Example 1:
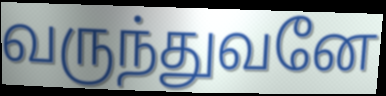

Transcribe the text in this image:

வருந்துவனே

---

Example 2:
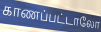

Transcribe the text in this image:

காணப்பட்டாலோ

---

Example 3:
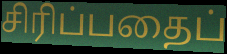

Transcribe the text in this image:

சிரிப்பதைப்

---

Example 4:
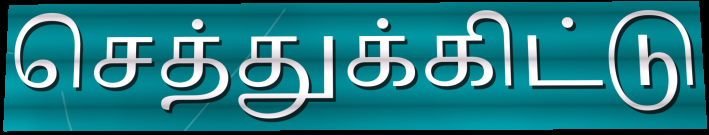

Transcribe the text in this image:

செத்துக்கிட்டு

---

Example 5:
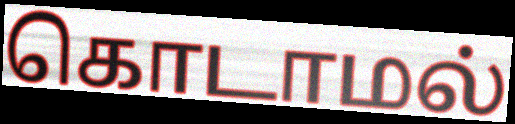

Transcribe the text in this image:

கொடாமல்